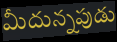
మీదున్నపుడు